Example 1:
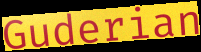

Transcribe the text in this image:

Guderian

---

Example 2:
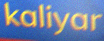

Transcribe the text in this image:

kaliyar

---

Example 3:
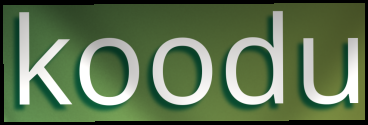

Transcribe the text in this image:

koodu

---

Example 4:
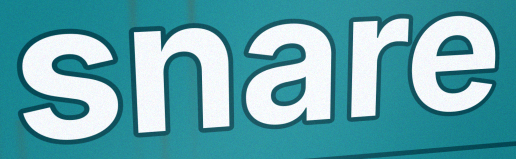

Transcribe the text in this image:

snare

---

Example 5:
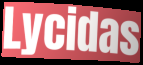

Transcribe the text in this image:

Lycidas